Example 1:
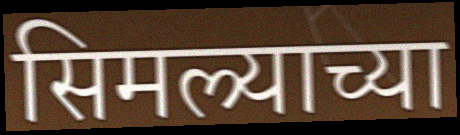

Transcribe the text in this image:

सिमल्याच्या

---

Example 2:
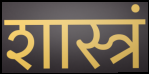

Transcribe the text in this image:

शास्त्रं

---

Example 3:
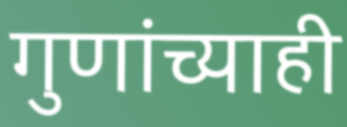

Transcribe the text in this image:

गुणांच्याही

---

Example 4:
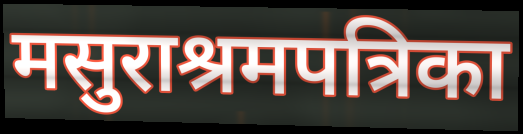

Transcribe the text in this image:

मसुराश्रमपत्रिका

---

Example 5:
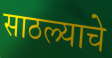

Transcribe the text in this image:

साठल्याचे